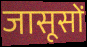
जासूसों